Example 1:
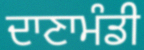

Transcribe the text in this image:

ਦਾਣਾਮੰਡੀ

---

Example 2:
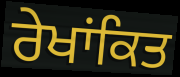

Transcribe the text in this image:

ਰੇਖਾਂਕਿਤ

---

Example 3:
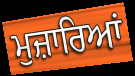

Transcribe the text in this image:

ਮੁਜ਼ਾਰਿਆਂ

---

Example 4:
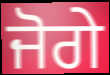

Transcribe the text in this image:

ਜੋਗੇ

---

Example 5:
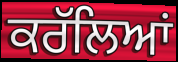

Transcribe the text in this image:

ਕਰੱਲਿਆਂ